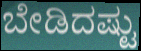
ಬೇಡಿದಷ್ಟು